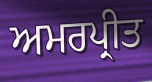
ਅਮਰਪ੍ਰੀਤ